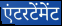
एंटरटेंमेंट